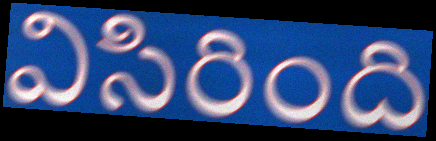
విసిరింది